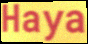
Haya